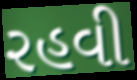
રહવી